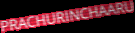
PRACHURINCHAARU